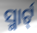
ସ୍ମାର୍ଟ୍